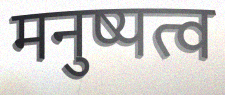
मनुष्यत्‍व